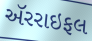
ઍરરાઇફલ